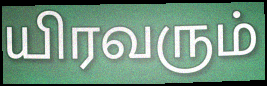
யிரவரும்